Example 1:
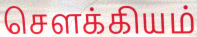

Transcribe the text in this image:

சௌக்கியம்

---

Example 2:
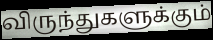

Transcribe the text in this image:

விருந்துகளுக்கும்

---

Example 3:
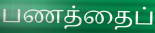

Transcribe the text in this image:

பணத்தைப்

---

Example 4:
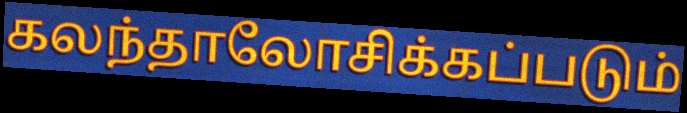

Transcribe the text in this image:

கலந்தாலோசிக்கப்படும்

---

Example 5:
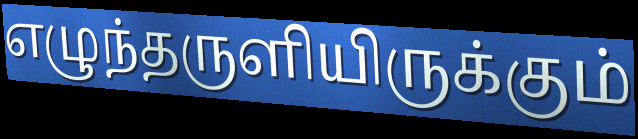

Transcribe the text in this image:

எழுந்தருளியிருக்கும்